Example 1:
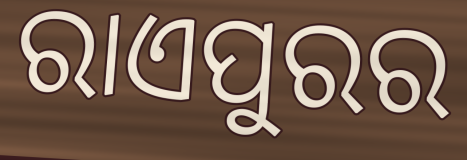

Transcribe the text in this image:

ରାଏପୁରର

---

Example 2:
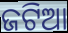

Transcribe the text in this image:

ଜଟିଆ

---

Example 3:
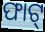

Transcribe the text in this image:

ଫାଟ୍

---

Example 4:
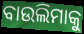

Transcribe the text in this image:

ବାଉଲିମାକୁ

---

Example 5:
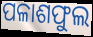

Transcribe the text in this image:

ପଳାଶଫୁଲ